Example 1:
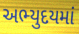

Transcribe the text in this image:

અભ્યુદયમાં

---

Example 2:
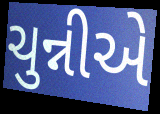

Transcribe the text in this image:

ચુન્નીએ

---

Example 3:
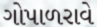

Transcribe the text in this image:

ગોપાળરાવે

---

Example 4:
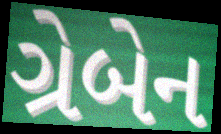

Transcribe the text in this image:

ગ્રેબેન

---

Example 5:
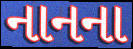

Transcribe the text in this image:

નાનના